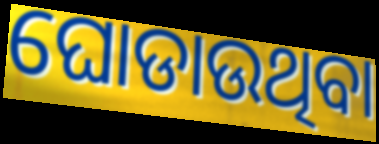
ଘୋଡାଉଥିବା